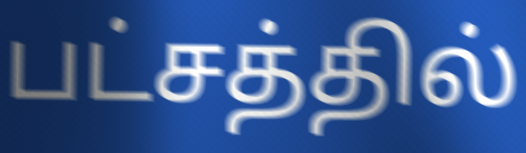
பட்சத்தில்